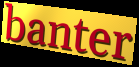
banter